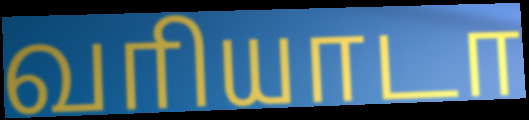
வரியாடா